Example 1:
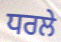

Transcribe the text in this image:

ਧਰਲੇ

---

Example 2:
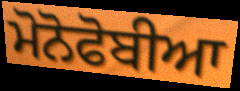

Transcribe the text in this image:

ਮੋਨੋਫੋਬੀਆ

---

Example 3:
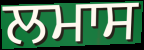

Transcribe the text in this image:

ਲਮਾਸ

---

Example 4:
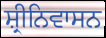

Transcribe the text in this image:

ਸ਼੍ਰੀਨਿਵਾਸਨ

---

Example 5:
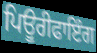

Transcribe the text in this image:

ਪਿਊਰੀਫਾਇੰਗ